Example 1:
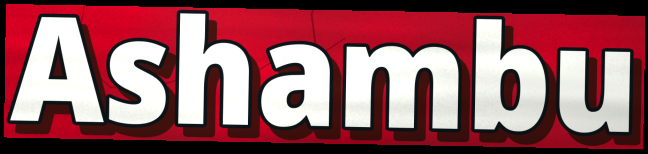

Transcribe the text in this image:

Ashambu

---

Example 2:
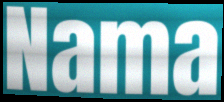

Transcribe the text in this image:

Nama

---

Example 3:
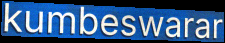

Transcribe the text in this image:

kumbeswarar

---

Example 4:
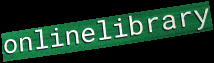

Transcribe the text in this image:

onlinelibrary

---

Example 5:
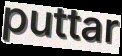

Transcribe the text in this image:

puttar